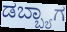
ಡಬ್ಬ್ಯಾಗ